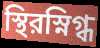
স্থিরস্নিগ্ধ